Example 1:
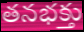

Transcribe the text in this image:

తనభక్తు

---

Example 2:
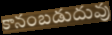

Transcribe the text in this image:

కానంబడుదువు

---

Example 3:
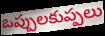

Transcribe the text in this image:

ఒప్పులకుప్పలు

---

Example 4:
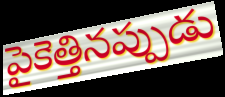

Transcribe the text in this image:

పైకెత్తినప్పుడు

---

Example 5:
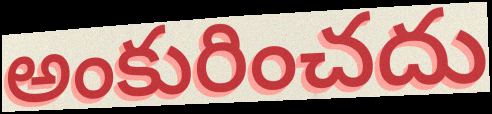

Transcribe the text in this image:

అంకురించదు